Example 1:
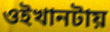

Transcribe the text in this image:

ওইখানটায়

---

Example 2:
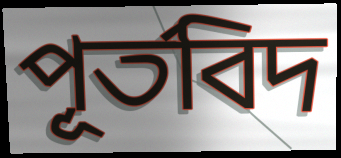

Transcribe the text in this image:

পূর্তবিদ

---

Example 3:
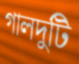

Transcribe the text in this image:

গালদুটি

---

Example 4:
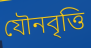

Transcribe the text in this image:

যৌনবৃত্তি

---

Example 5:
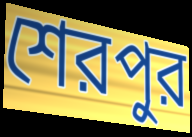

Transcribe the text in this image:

শেরপুর